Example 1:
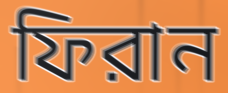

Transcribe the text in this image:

ফিরান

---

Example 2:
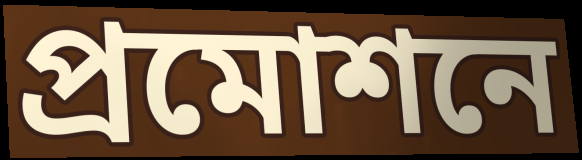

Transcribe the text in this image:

প্রমোশনে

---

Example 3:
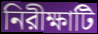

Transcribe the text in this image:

নিরীক্ষাটি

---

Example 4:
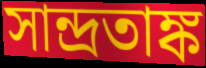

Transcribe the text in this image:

সান্দ্রতাঙ্ক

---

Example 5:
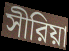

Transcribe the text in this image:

সীরিয়া